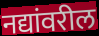
नद्यांवरील